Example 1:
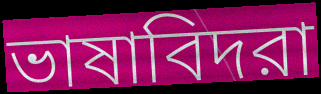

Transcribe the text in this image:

ভাষাবিদরা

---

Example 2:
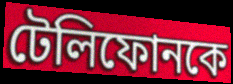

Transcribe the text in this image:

টেলিফোনকে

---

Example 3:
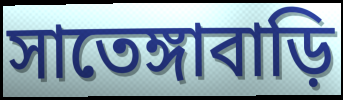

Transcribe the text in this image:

সাতেঙ্গাবাড়ি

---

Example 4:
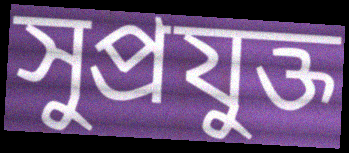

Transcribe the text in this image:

সুপ্রযুক্ত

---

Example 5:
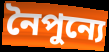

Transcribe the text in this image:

নৈপুন্যে